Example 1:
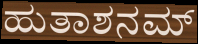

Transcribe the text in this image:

ಹುತಾಶನಮ್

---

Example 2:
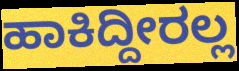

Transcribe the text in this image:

ಹಾಕಿದ್ದೀರಲ್ಲ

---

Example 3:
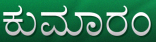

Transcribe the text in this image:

ಕುಮಾರಂ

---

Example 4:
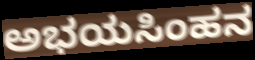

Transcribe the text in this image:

ಅಭಯಸಿಂಹನ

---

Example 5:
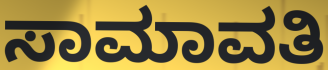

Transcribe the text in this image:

ಸಾಮಾವತಿ